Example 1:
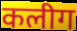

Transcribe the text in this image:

कलीग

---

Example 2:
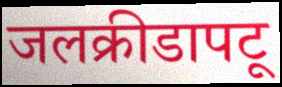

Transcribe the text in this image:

जलक्रीडापटू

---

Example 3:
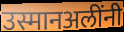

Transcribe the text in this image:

उस्मानअलींनी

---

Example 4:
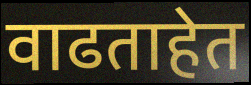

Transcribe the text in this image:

वाढताहेत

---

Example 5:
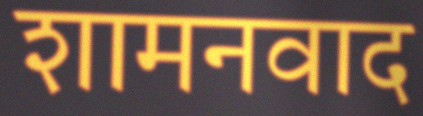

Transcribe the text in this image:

शामनवाद